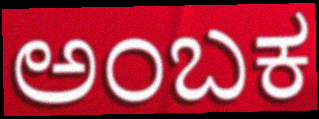
ಅಂಬಕ